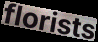
florists